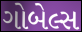
ગોબેલ્સ